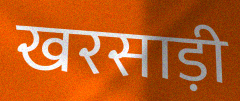
खरसाड़ी